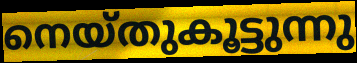
നെയ്തുകൂട്ടുന്നു